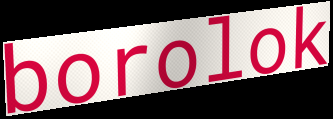
borolok